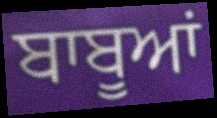
ਬਾਬੂਆਂ